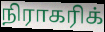
நிராகரிக்